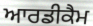
ਆਰਡੀਕੈਮ